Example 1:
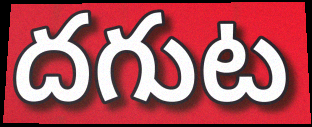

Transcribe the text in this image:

దగుట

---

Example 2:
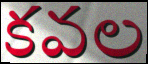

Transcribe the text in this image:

కవల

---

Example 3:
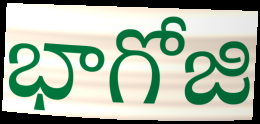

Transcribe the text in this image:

భాగోజి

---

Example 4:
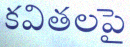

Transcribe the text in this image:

కవితలపై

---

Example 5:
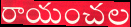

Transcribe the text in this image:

రాయంచల